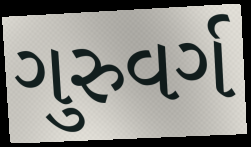
ગુરુવર્ગ